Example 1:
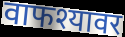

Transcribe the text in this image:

वाफश्यावर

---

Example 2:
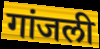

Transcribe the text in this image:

गांजली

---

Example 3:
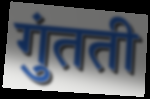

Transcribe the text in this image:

गुंतती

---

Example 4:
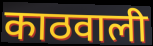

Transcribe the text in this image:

काठवाली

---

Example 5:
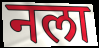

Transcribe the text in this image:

नला